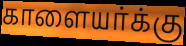
காளையர்க்கு